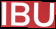
IBU